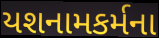
યશનામકર્મના